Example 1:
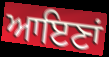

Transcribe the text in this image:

ਆਇਣਾਂ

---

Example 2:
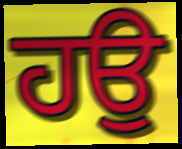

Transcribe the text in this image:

ਹਉ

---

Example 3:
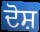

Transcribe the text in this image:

ਦੋਸ਼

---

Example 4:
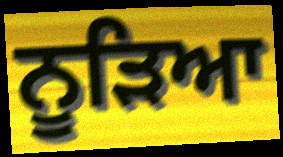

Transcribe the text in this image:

ਨੂੜਿਆ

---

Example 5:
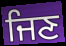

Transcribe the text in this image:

ਜਿਣ